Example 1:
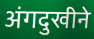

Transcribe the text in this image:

अंगदुखीने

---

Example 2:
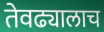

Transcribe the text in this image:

तेवढ्यालाच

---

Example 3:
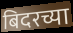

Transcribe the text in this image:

बिदरच्या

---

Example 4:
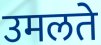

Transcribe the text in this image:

उमलते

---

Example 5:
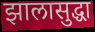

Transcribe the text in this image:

झालासुद्धा